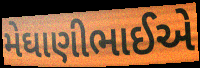
મેઘાણીભાઈએ